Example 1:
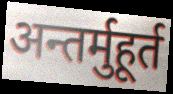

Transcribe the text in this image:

अन्तर्मुहूर्त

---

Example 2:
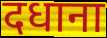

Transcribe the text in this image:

दधाना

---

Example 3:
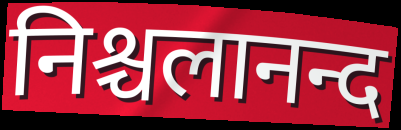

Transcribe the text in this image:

निश्चलानन्द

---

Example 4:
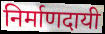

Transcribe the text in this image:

निर्माणदायी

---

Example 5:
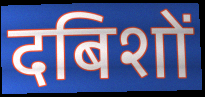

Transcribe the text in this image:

दबिशों